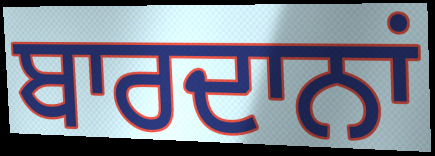
ਬਾਰਦਾਨਾਂ